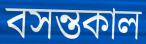
বসন্তকাল